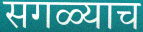
सगळ्याच